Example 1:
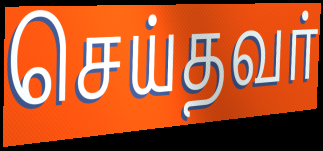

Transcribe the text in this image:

செய்தவர்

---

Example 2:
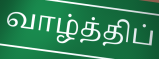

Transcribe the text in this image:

வாழ்த்திப்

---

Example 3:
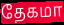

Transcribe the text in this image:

தேகமா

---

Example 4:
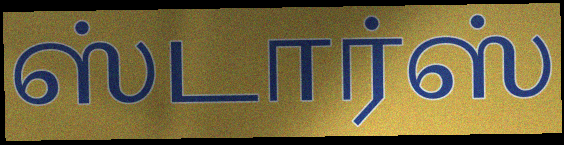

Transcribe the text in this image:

ஸ்டார்ஸ்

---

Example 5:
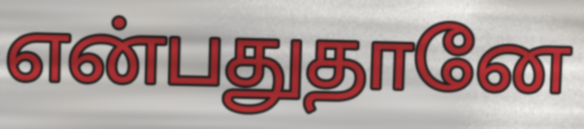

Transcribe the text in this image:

என்பதுதானே